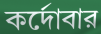
কর্দোবার